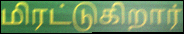
மிரட்டுகிறார்